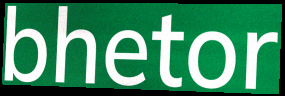
bhetor